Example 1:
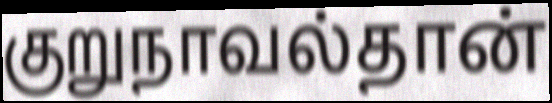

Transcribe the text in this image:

குறுநாவல்தான்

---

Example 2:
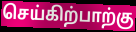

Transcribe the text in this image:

செய்கிற்பாற்கு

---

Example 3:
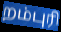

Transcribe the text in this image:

றம்புரி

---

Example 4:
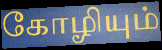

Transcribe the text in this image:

கோழியும்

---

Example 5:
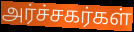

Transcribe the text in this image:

அர்ச்சகர்கள்